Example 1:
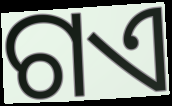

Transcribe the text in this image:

ଗଏ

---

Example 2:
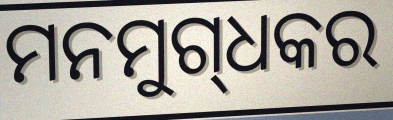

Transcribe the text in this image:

ମନମୁଗ୍‌ଧକର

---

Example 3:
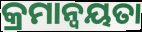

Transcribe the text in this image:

କ୍ରମାନ୍ବୟତା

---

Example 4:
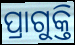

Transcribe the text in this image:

ପ୍ରାଗୁକ୍ତି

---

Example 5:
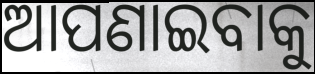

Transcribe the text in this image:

ଆପଣାଇବାକୁ